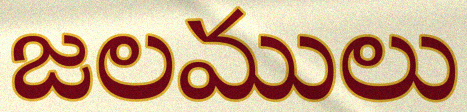
జలములు